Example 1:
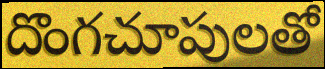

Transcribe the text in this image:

దొంగచూపులతో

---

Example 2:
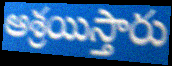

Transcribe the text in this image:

ఆశ్రయిస్తారు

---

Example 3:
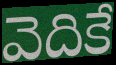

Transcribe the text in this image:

వెదికే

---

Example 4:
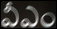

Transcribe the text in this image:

వీఎం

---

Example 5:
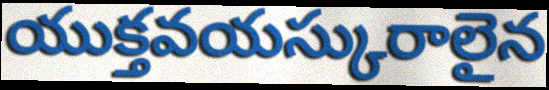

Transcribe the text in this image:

యుక్తవయస్కురాలైన